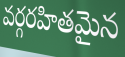
వర్గరహితమైన